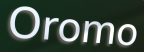
Oromo